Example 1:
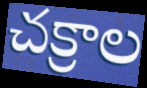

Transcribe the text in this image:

చక్రాల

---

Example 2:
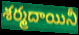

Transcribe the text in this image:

శర్మదాయినీ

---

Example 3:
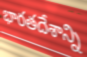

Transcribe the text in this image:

భారతదేశాన్ని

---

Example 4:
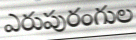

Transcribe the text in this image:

ఎరుపురంగుల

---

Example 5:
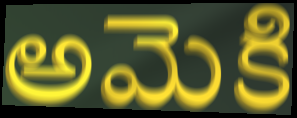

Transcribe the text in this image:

అమెకి